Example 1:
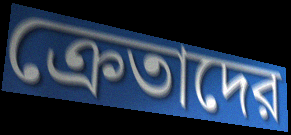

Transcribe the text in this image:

ক্রেতাদের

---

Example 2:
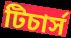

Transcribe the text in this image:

টিচার্স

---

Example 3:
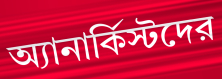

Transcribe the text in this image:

অ্যানার্কিস্টদের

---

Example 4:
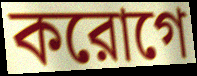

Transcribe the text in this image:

করোগে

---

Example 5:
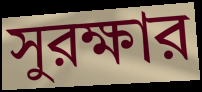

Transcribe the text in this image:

সুরক্ষার